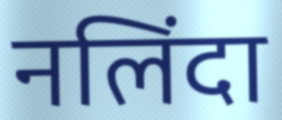
नलिंदा